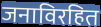
जनाविरहित